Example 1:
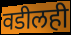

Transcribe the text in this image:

वडीलही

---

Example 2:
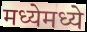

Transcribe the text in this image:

मध्येमध्ये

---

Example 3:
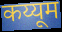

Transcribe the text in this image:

कय्यूम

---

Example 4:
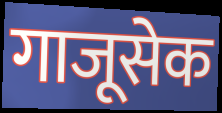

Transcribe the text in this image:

गाजूसेक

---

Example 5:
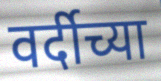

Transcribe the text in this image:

वर्दीच्या